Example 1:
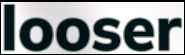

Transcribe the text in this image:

looser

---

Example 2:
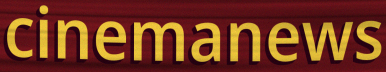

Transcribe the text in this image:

cinemanews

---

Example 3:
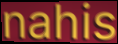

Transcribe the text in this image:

nahis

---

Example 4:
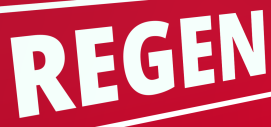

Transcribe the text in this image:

REGEN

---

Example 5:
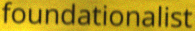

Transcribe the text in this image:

foundationalist